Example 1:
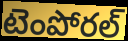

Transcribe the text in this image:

టెంపోరల్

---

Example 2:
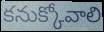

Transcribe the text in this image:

కనుక్కోవాలి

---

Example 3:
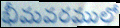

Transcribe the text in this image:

భీమవరములో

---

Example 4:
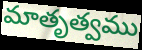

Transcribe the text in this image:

మాతృత్వము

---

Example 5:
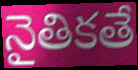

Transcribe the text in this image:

నైతికతే